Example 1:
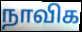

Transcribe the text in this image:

நாவிக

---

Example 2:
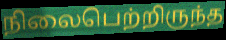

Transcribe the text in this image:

நிலைபெற்றிருந்த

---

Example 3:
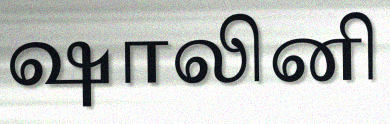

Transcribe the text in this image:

ஷாலினி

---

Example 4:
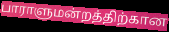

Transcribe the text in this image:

பாராளுமன்றத்திற்கான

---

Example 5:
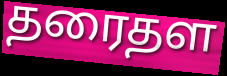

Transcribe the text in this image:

தரைதள